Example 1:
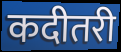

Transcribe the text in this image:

कदीतरी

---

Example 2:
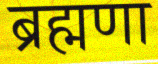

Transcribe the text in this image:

ब्रह्मणा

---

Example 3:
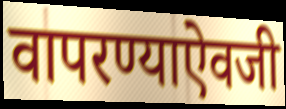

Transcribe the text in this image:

वापरण्याऐवजी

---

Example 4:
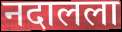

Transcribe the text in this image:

नदालला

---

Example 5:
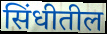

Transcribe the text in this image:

सिंधीतील